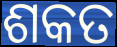
ଶକତ